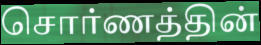
சொர்ணத்தின்